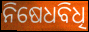
ନିଷେଧବିଧି